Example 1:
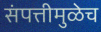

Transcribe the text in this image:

संपत्तीमुळेच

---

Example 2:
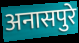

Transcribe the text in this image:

अनासपुरे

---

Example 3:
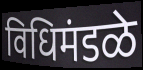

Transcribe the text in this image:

विधिमंडळे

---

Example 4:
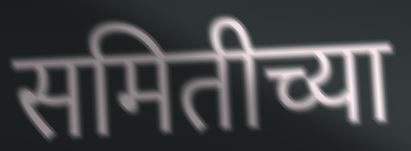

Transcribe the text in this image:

समितीच्या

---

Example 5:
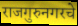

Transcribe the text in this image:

राजगुरुनगरचे